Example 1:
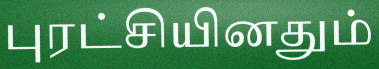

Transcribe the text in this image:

புரட்சியினதும்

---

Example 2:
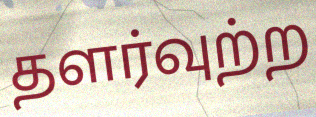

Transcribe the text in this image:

தளர்வுற்ற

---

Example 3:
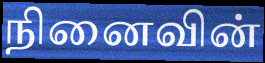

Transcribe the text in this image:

நினைவின்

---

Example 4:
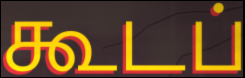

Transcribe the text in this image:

கூடப்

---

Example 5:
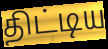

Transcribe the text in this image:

திட்டிய